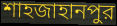
শাহজাহানপুর